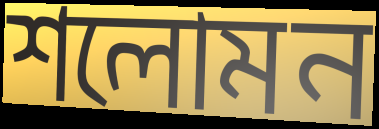
শলোমন